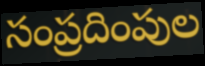
సంప్రదింపుల